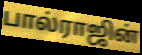
பால்ராஜின்